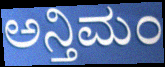
ಅನ್ತಿಮಂ